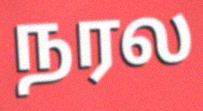
நரல